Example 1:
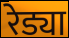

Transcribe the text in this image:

रेड्या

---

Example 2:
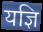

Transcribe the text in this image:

यज्ञि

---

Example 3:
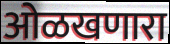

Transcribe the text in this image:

ओळखणारा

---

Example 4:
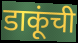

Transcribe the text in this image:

डाकूंची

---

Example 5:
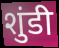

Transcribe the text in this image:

शुंडी